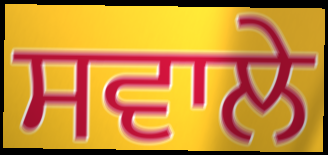
ਸਵਾਲੇ